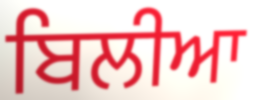
ਬਿਲੀਆ